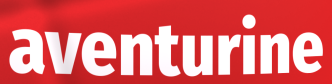
aventurine